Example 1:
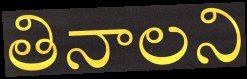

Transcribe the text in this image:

తినాలని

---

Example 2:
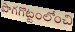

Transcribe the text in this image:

పొగగొట్టంలోంచి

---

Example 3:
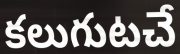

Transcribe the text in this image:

కలుగుటచే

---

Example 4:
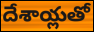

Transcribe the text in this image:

దేశాయ్లతో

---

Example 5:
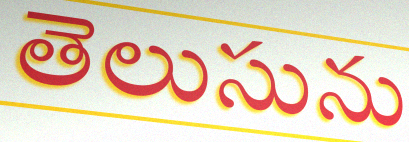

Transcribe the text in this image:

తెలుసును